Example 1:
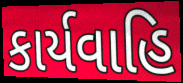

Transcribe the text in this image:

કાર્યવાહિ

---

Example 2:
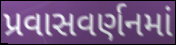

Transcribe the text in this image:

પ્રવાસવર્ણનમાં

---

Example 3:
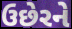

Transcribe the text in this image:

ઉછેરને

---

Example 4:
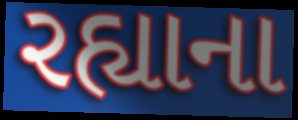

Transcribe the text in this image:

રહ્યાના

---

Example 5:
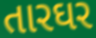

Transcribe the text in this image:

તારઘર